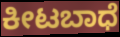
ಕೀಟಬಾಧೆ